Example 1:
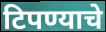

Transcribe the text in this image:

टिपण्याचे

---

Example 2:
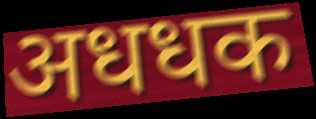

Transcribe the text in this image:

अधधक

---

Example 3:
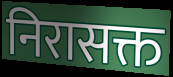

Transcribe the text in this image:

निरासक्त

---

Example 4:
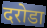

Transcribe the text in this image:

दरोडा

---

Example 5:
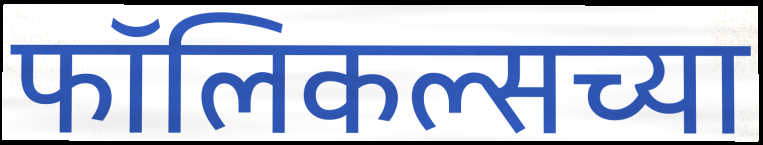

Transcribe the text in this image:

फॉलिकल्सच्या